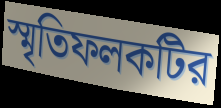
স্মৃতিফলকটির